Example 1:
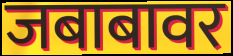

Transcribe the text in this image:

जबाबावर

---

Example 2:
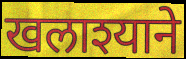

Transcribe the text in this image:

खलाश्याने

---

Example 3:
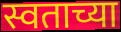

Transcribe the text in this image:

स्वताच्या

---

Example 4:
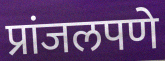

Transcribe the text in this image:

प्रांजलपणे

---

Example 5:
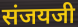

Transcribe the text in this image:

संजयजी